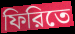
ফিরিতে